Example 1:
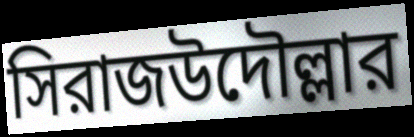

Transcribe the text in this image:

সিরাজউদৌল্লার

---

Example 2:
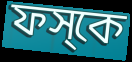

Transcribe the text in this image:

ফস্‌কে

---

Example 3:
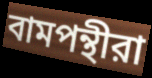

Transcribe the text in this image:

বামপন্থীরা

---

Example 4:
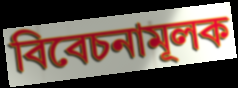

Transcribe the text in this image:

বিবেচনামূলক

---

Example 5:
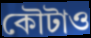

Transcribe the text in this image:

কৌটাও